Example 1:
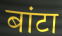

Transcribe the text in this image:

बांटा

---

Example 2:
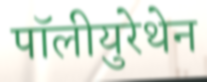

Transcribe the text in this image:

पॉलीयुरेथेन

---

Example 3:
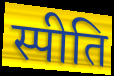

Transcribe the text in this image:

स्पीति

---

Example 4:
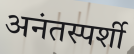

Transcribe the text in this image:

अनंतस्पर्शी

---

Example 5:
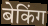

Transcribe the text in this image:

बेकिंग